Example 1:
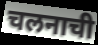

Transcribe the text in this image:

चलनाची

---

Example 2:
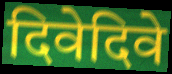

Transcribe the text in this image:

दिवेदिवे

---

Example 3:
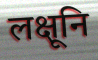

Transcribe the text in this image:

लक्षूनि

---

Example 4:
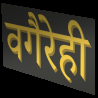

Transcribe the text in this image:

वगैरेही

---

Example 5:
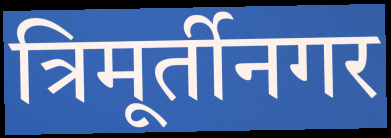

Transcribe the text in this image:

त्रिमूर्तीनगर